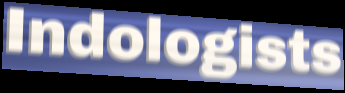
Indologists